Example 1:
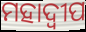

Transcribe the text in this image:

ମହାଦ୍ୱୀପ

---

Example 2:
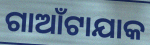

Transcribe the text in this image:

ଗାଆଁଟାଯାକ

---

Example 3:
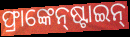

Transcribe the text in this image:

ଫ୍ରାଙ୍କେନ୍‌ଷ୍ଟାଇନ୍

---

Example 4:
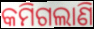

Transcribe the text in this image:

କମିଗଲାଣି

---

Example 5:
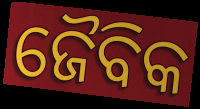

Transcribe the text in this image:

ଜୈବିକ